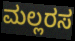
ಮಲ್ಲರಸ